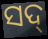
ସଦ୍